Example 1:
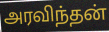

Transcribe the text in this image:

அரவிந்தன்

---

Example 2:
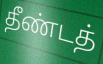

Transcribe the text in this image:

தீண்டத்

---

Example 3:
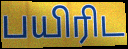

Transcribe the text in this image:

பயிரிட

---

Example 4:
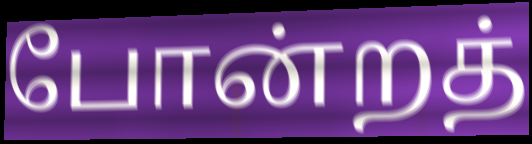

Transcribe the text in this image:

போன்றத்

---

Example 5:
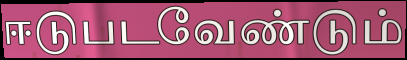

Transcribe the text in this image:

ஈடுபடவேண்டும்